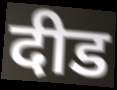
दीड